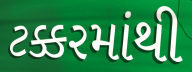
ટક્કરમાંથી